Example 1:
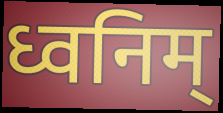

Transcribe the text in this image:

ध्वनिम्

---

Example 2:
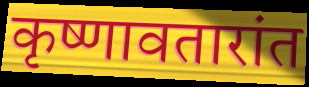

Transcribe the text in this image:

कृष्णावतारांत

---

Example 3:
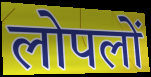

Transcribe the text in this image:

लोपलों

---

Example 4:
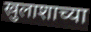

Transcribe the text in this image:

खुलाशाच्या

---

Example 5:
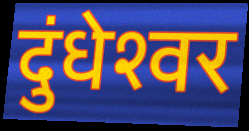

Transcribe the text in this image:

दुंधेश्वर